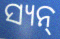
ସ୍ୟନ୍